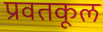
प्रवतकूल